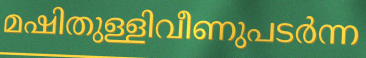
മഷിതുള്ളിവീണുപടർന്ന